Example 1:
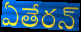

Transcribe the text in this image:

ఏతేరన్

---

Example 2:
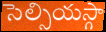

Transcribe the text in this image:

సెల్సియస్గా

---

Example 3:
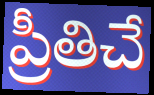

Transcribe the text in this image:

ప్రీతిచే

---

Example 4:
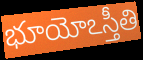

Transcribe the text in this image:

భూయోఽస్తీతి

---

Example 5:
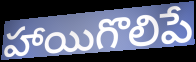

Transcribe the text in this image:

హాయిగొలిపే